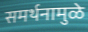
समर्थनामुळे